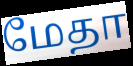
மேதா